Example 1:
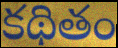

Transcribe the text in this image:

కథితం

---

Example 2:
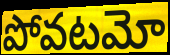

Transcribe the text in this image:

పోవటమో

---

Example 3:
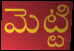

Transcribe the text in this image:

మెట్టి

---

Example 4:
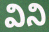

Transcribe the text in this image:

విని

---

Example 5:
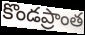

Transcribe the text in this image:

కొండప్రాంత